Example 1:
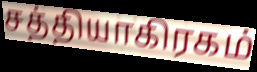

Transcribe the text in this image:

சத்தியாகிரகம்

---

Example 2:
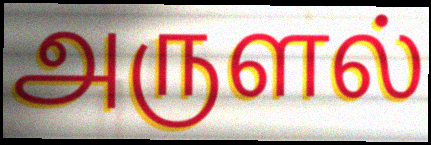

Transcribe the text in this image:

அருளல்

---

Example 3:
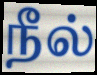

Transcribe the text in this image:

நீல்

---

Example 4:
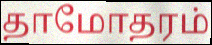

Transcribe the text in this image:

தாமோதரம்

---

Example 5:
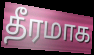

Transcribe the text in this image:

தீரமாக